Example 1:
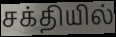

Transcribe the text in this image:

சக்தியில்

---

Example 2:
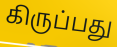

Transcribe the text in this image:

கிருப்பது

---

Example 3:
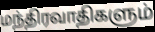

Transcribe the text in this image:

மந்திரவாதிகளும்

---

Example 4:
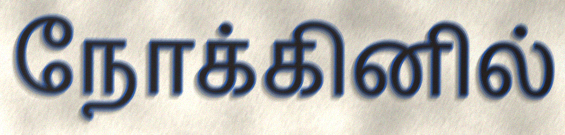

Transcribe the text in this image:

நோக்கினில்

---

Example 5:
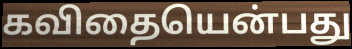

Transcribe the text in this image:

கவிதையென்பது